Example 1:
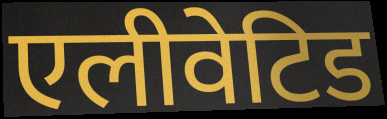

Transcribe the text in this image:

एलीवेटिड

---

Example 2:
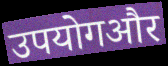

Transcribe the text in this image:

उपयोगऔर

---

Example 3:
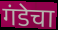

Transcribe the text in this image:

गंडेचा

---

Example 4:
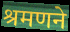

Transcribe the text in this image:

श्रमणने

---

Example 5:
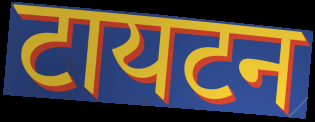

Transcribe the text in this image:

टायटन